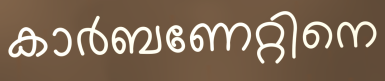
കാർബണേറ്റിനെ